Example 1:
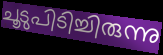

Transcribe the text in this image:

ചൂടുപിടിച്ചിരുന്നു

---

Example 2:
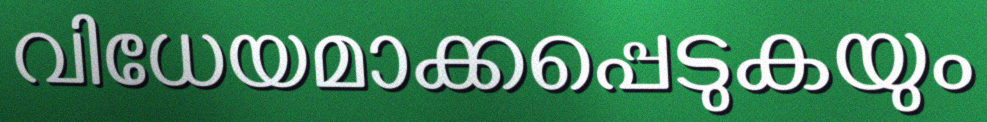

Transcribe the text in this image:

വിധേയമാക്കപ്പെടുകയും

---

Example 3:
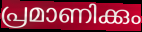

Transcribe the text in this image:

പ്രമാണിക്കും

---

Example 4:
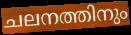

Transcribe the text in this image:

ചലനത്തിനും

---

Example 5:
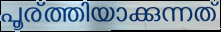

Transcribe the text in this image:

പൂര്ത്തിയാക്കുന്നത്